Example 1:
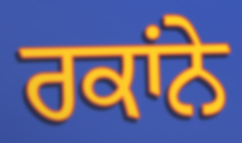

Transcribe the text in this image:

ਰਕਾਂਨੇ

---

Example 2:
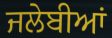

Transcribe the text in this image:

ਜਲੇਬੀਆਂ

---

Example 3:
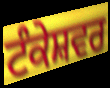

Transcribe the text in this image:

ਟੰਕੇਸ਼ਵਰ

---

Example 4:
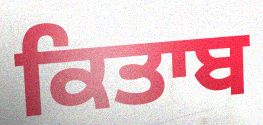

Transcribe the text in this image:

ਕਿਤਾਬ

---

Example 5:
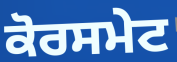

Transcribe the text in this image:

ਕੋਰਸਮੇਟ